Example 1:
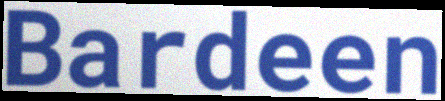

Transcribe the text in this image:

Bardeen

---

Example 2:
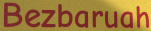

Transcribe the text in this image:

Bezbaruah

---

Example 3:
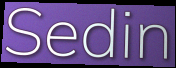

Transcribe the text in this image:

Sedin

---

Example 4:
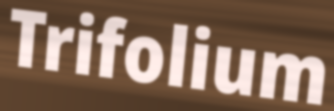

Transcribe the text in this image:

Trifolium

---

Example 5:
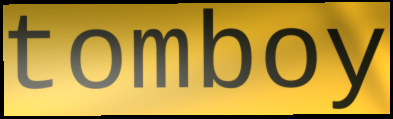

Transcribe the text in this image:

tomboy